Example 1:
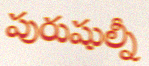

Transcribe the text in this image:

పురుషుల్నీ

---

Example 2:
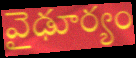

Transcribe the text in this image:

వైఢూర్యం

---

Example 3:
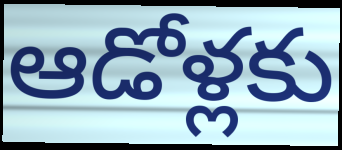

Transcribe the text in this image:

ఆడోళ్లకు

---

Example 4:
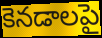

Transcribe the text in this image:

కెనడాలపై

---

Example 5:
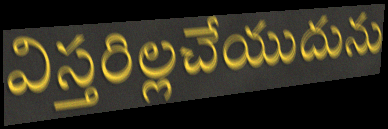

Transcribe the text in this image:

విస్తరిల్లచేయుదును